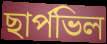
ছাৰ্পভিল